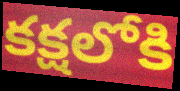
కక్షలోకి